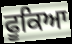
ਫੂਕਿਆ